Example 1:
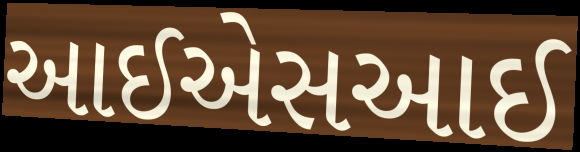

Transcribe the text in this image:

આઈએસઆઈ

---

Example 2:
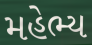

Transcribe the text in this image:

મહેભ્ય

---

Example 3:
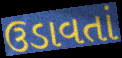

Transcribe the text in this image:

ઉડાવતાં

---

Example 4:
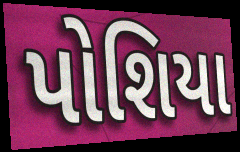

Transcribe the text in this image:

પોશિયા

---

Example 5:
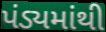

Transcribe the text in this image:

પંડ્યમાંથી